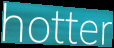
hotter